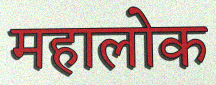
महालोक